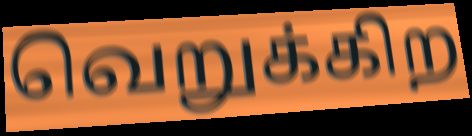
வெறுக்கிற